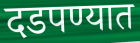
दडपण्यात